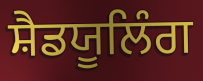
ਸ਼ੈਡਯੂਲਿੰਗ